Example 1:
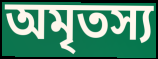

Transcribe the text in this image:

অমৃতস্য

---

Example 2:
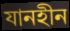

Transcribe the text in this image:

যানহীন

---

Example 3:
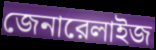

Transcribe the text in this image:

জেনারেলাইজ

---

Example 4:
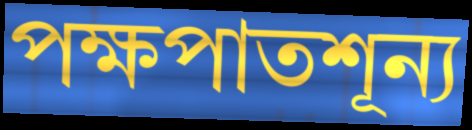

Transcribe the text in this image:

পক্ষপাতশূন্য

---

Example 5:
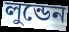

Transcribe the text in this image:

লুন্ডেন